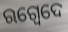
ଋଗ୍ଵେଦେ